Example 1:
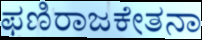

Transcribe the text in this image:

ಫಣಿರಾಜಕೇತನಾ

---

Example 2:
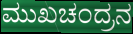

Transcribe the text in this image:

ಮುಖಚಂದ್ರನ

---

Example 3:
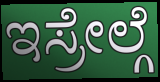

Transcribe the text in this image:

ಇಸ್ರೇಲ್ಗೆ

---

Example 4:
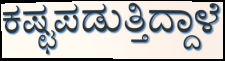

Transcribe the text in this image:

ಕಷ್ಟಪಡುತ್ತಿದ್ದಾಳೆ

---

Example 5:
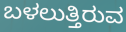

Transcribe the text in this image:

ಬಳಲುತ್ತಿರುವ